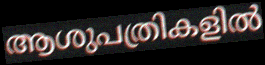
ആശുപത്രികളിൽ